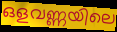
ഒളവണ്ണയിലെ